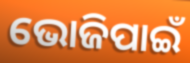
ଭୋଜିପାଇଁ